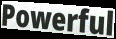
Powerful